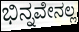
ಭಿನ್ನವೇನಲ್ಲ